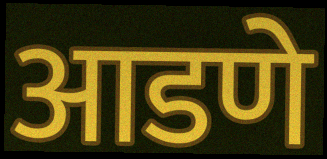
आडणे